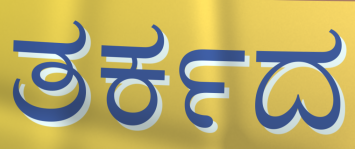
ತರ್ಕದ